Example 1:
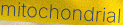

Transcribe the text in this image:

mitochondrial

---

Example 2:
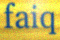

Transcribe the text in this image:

faiq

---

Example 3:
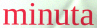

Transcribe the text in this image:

minuta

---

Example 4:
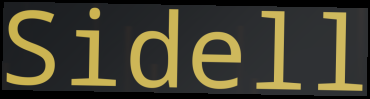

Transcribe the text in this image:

Sidell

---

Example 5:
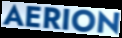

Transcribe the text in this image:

AERION